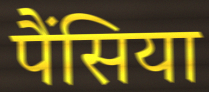
पैंसिया